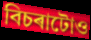
বিচৰাটোও